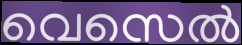
വെസെൽ